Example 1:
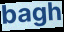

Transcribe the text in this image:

bagh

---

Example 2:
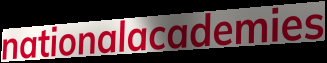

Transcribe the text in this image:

nationalacademies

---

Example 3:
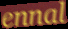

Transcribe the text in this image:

ennal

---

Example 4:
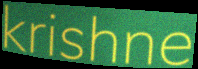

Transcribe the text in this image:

krishne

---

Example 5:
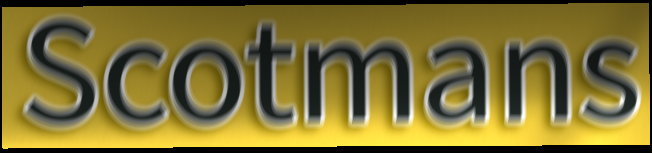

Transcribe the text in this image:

Scotmans